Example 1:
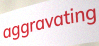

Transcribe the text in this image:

aggravating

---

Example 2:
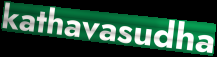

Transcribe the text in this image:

kathavasudha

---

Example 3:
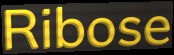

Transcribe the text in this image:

Ribose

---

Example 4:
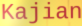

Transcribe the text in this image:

Kajian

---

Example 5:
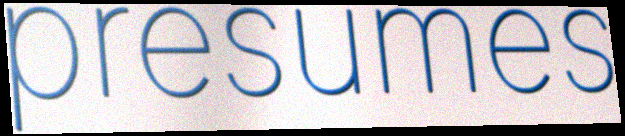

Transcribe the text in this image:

presumes